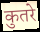
कुतरे